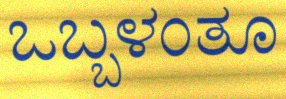
ಒಬ್ಬಳಂತೂ